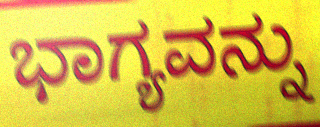
ಭಾಗ್ಯವನ್ನು